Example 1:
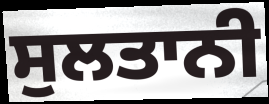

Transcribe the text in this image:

ਸੁਲਤਾਨੀ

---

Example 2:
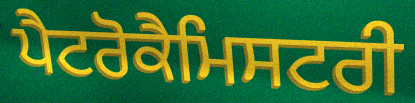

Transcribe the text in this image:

ਪੈਟਰੋਕੈਮਿਸਟਰੀ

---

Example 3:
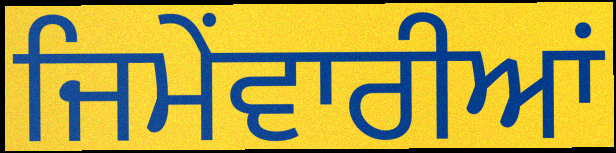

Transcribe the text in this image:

ਜਿਮੇਂਵਾਰੀਆਂ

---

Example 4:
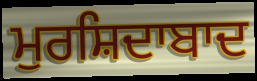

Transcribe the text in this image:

ਮੁਰਸ਼ਿਦਾਬਾਦ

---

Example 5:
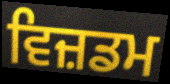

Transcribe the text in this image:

ਵਿਜ਼ਡਮ